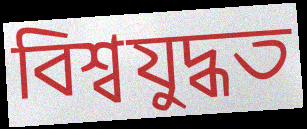
বিশ্বযুদ্ধত